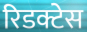
रिडक्टेस